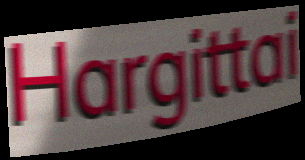
Hargittai